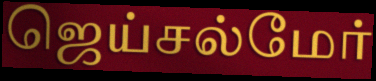
ஜெய்சல்மேர்